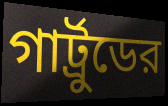
গার্ট্রুডের